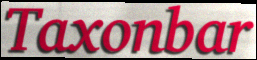
Taxonbar